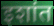
इशांत